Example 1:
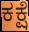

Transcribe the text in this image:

ಕಕ್ಷೆ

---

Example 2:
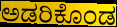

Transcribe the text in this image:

ಅಡರಿಕೊಂಡ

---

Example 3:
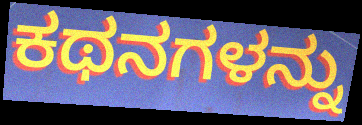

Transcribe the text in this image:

ಕಥನಗಳನ್ನು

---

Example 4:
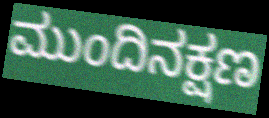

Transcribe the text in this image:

ಮುಂದಿನಕ್ಷಣ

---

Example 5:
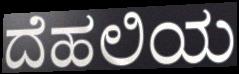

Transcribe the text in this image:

ದೆಹಲಿಯ